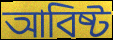
আবিষ্ট